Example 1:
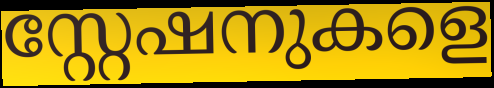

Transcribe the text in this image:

സ്റ്റേഷനുകളെ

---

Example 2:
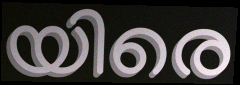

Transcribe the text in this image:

യിരെ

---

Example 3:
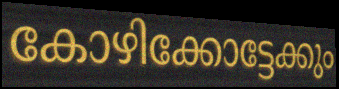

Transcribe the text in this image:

കോഴിക്കോട്ടേക്കും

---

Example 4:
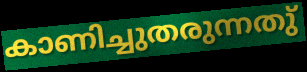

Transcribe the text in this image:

കാണിച്ചുതരുന്നതു്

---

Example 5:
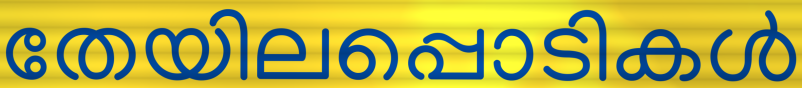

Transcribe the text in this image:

തേയിലപ്പൊടികൾ